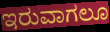
ಇರುವಾಗಲೂ